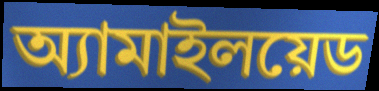
অ্যামাইলয়েড